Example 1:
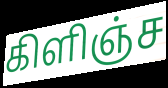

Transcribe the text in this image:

கிளிஞ்ச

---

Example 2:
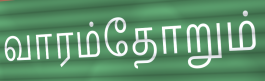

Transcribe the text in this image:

வாரம்தோறும்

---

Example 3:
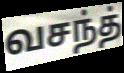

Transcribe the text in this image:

வசந்த்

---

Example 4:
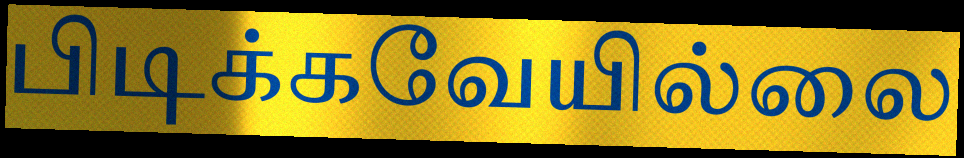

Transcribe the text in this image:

பிடிக்கவேயில்லை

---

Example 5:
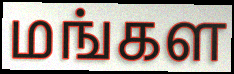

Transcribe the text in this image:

மங்கள